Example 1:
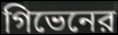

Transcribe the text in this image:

গিভেনের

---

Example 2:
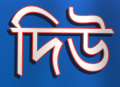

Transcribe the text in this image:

দিউ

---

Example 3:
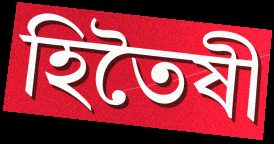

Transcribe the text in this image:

হিতৈষী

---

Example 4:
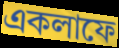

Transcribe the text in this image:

একলাফে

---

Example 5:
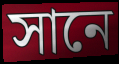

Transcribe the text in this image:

সানে